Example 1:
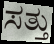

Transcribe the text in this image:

ಸತ್ತು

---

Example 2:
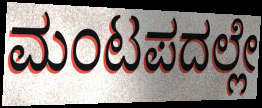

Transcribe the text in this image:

ಮಂಟಪದಲ್ಲೇ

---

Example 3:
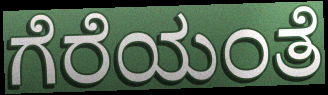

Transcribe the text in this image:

ಗೆರೆಯಂತೆ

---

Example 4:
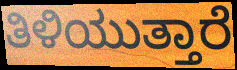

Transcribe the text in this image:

ತಿಳಿಯುತ್ತಾರೆ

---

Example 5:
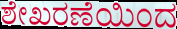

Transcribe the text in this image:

ಶೇಖರಣೆಯಿಂದ